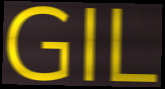
GIL